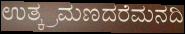
ಉತ್ಕ್ರಮಣದರೆಮನದಿ